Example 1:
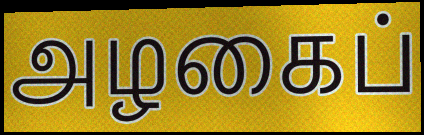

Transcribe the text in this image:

அழகைப்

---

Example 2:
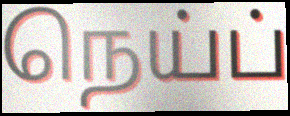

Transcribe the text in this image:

நெய்ப்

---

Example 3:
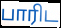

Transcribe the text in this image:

பாரிட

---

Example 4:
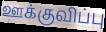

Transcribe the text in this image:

ஊக்குவிப்பு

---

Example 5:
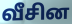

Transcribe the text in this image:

வீசின